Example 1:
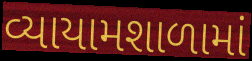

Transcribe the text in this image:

વ્યાયામશાળામાં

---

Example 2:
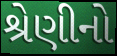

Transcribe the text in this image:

શ્રેણીનો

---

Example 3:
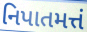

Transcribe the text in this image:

નિપાતમત્તં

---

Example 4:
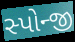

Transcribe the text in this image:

સ્પોન્જી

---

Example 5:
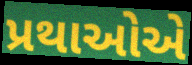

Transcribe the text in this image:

પ્રથાઓએ